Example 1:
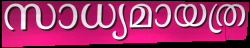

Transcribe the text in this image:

സാധ്യമായത്ര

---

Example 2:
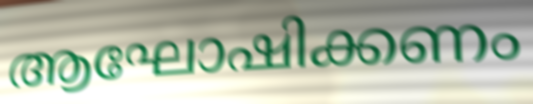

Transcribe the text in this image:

ആഘോഷിക്കണം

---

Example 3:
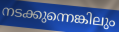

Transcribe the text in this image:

നടക്കുന്നെങ്കിലും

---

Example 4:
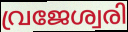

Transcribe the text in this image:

വ്രജേശ്വരി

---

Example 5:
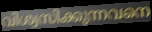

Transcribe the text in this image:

വിശ്വസിക്കുന്നവനെ